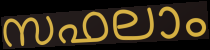
സഫലാം